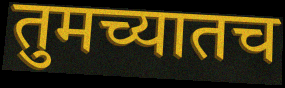
तुमच्यातच